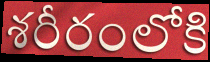
శరీరంలోకి